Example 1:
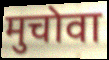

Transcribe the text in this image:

मुचोवा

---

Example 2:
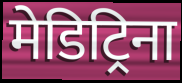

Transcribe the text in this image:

मेडिट्रिना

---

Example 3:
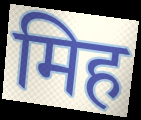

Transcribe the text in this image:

मिह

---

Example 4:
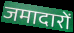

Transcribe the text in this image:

जमादारों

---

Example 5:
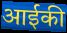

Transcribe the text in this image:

आईकी